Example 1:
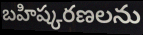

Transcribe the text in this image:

బహిష్కరణలను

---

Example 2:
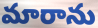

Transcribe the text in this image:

మారాను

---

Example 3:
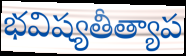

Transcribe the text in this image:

భవిష్యతీత్యాప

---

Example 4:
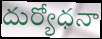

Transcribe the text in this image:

దుర్యోధనా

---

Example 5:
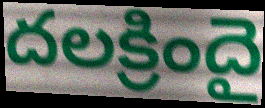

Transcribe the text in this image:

దలక్రిందై